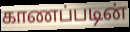
காணப்படின்